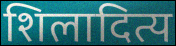
शिलादित्य